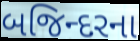
બજિન્દરના